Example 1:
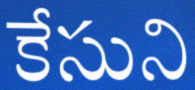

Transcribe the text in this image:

కేసుని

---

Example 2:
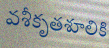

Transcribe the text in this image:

వశీకృతశూలికి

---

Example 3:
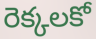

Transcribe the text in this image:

రెక్కలకో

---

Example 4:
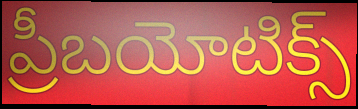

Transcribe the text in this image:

ప్రీబయోటిక్స్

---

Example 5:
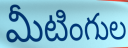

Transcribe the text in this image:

మీటింగుల